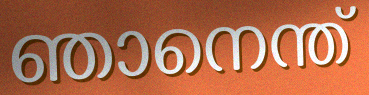
ഞാനെന്ത്